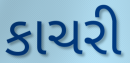
કાચરી